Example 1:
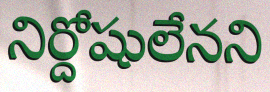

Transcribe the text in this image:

నిర్దోషులేనని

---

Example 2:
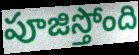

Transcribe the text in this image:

పూజిస్తోంది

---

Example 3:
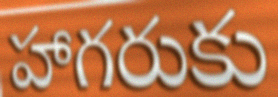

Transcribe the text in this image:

హాగరుకు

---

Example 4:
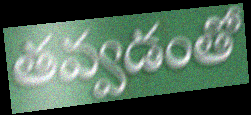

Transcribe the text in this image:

తవ్వడంతో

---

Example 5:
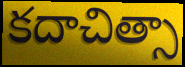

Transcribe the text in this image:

కదాచిత్సా